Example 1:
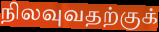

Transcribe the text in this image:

நிலவுவதற்குக்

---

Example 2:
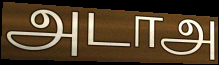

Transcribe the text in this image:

அடாஅ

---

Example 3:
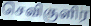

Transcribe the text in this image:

செவிகுளிர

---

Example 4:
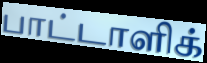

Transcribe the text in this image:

பாட்டாளிக்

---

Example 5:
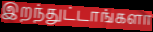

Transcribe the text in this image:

இறந்துட்டாங்களா